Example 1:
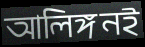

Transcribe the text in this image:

আলিঙ্গনই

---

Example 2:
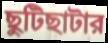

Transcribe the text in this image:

ছুটিছাটার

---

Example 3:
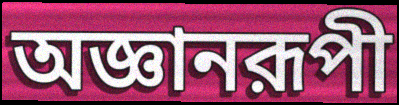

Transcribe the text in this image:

অজ্ঞানরূপী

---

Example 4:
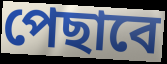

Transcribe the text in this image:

পেছাবে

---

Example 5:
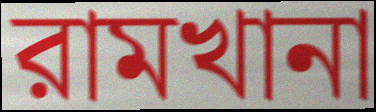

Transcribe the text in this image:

রামখানা